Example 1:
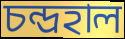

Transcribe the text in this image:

চন্দ্ৰহাল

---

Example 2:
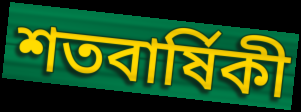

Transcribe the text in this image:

শতবাৰ্ষিকী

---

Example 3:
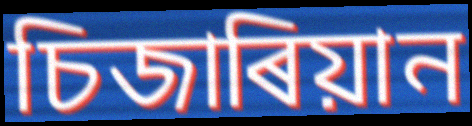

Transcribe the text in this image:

চিজাৰিয়ান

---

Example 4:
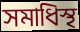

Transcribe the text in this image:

সমাধিস্থ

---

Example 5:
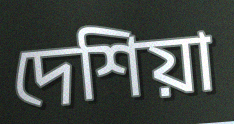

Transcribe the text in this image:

দেশিয়া